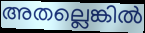
അതല്ലെങ്കിൽ